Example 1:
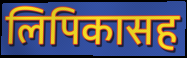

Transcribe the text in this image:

लिपिकासह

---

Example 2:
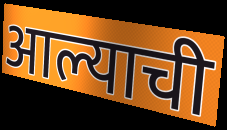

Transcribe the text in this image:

आल्याची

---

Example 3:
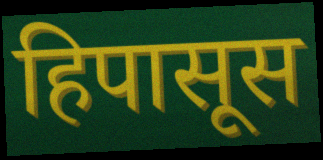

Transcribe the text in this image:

हिपासूस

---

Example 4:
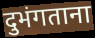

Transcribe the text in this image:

दुभंगताना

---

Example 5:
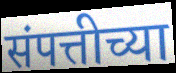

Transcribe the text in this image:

संपत्तीच्या